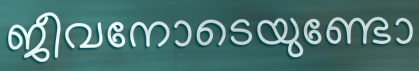
ജീവനോടെയുണ്ടോ